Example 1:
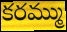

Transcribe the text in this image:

కరమ్ము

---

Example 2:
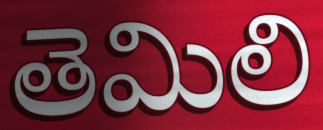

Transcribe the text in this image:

తెమిలి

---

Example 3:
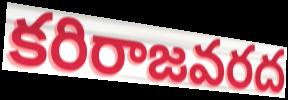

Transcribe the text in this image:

కరిరాజవరద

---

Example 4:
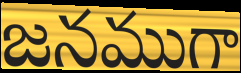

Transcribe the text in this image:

జనముగా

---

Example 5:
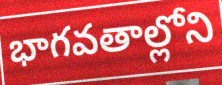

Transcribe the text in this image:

భాగవతాల్లోని